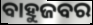
ବାହୁଜବର